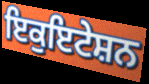
ਇਕੁਇਟੇਸ਼ਨ